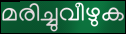
മരിച്ചുവീഴുക